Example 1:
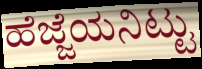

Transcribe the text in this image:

ಹೆಜ್ಜೆಯನಿಟ್ಟು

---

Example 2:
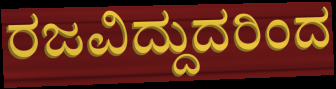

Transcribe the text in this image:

ರಜವಿದ್ದುದರಿಂದ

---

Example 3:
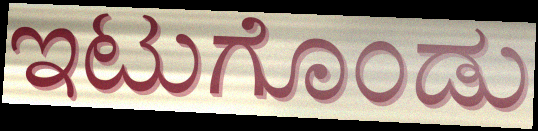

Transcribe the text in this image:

ಇಟುಗೊಂಡು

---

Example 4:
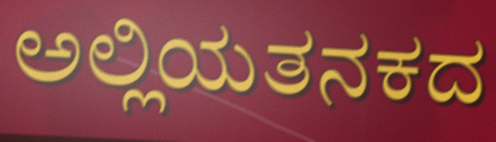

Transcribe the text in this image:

ಅಲ್ಲಿಯತನಕದ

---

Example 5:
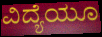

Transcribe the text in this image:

ವಿದ್ಯೆಯೂ